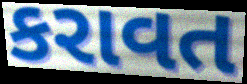
કરાવત